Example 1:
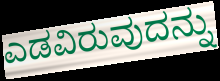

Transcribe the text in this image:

ಎಡವಿರುವುದನ್ನು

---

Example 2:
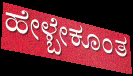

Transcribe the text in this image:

ಹೇಳ್ಬೇಕೂಂತ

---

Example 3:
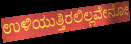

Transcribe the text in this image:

ಉಳಿಯುತ್ತಿರಲಿಲ್ಲವೇನೋ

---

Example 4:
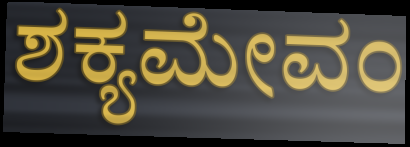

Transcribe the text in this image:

ಶಕ್ಯಮೇವಂ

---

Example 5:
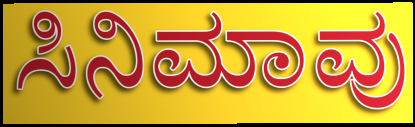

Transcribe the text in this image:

ಸಿನಿಮಾವು